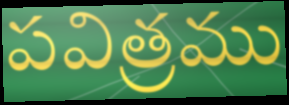
పవిత్రము